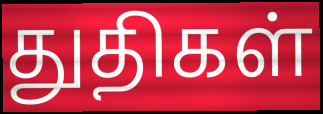
துதிகள்